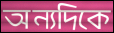
অন্যদিকে